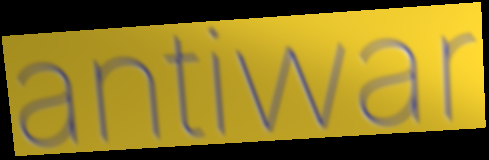
antiwar